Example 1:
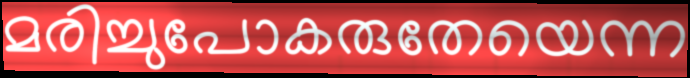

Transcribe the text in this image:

മരിച്ചുപോകരുതേയെന്ന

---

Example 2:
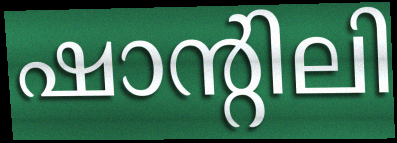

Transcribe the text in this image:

ഷാന്റിലി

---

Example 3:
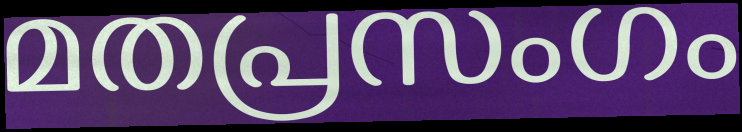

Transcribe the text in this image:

മതപ്രസംഗം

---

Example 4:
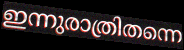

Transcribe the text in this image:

ഇന്നുരാത്രിതന്നെ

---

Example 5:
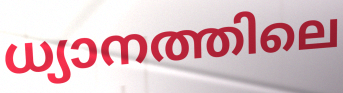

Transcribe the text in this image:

ധ്യാനത്തിലെ